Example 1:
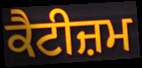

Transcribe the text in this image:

ਕੈਟੀਜ਼ਮ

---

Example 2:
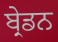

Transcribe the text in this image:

ਬ੍ਰੇਡਨ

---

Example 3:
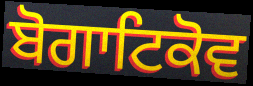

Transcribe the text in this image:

ਬੋਗਾਟਿਕੋਵ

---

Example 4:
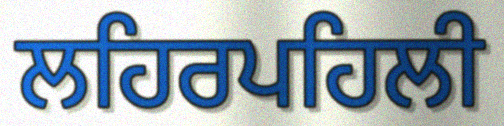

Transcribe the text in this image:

ਲਹਿਰਪਹਿਲੀ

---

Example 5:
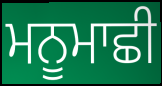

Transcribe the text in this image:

ਮਨੂਮਾਛੀ